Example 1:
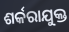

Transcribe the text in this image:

ଶର୍କରାଯୁକ୍ତ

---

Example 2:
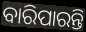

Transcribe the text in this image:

ବାରିପାରନ୍ତି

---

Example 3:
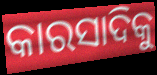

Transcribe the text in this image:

କାରସାଦିକୁ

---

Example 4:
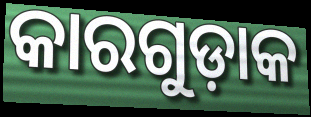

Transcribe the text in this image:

କାରଗୁଡ଼ାକ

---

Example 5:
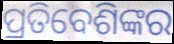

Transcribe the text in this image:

ପ୍ରତିବେଶିଙ୍କର